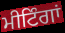
ਮੀਟਿੰਗਾਂ